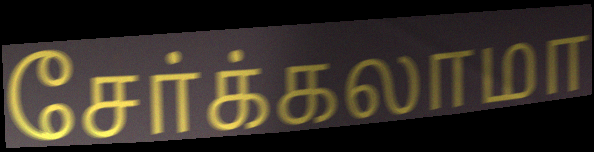
சேர்க்கலாமா